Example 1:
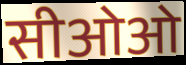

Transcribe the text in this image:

सीओओ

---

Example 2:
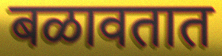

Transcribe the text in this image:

बळावतात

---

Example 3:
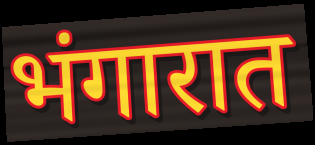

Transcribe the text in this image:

भंगारात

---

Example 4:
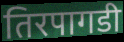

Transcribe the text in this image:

तिरपागडी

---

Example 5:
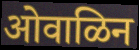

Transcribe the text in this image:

ओवाळिन